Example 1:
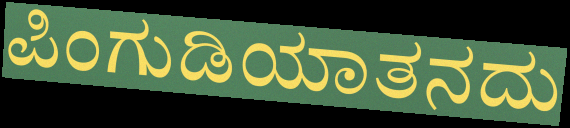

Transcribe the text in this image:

ಪಿಂಗುಡಿಯಾತನದು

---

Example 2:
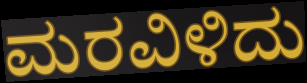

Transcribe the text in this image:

ಮರವಿಳಿದು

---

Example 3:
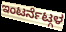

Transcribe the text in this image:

ಇಂಟರ್ನೆಟ್ಗಳ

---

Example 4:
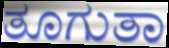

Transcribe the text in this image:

ತೂಗುತಾ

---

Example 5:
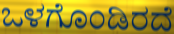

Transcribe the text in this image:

ಒಳಗೊಂಡಿರದೆ